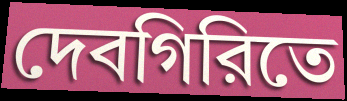
দেবগিরিতে